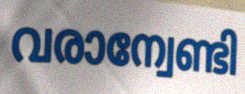
വരാന്വേണ്ടി